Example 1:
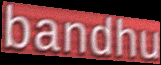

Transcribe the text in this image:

bandhu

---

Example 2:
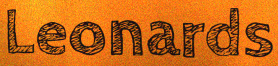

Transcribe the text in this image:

Leonards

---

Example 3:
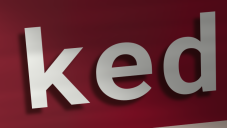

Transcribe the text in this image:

ked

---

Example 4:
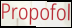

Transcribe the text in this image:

Propofol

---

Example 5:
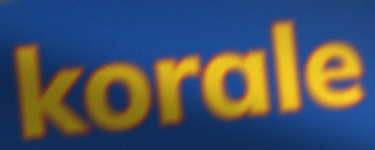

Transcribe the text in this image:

korale